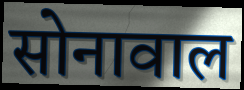
सोनावाल